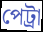
পেট্রা